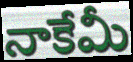
నాకేమీ